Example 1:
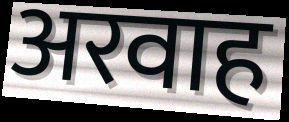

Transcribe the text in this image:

अरवाह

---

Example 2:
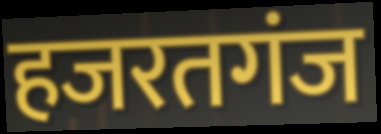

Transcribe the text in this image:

हजरतगंज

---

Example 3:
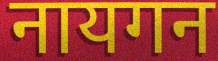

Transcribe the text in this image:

नायगन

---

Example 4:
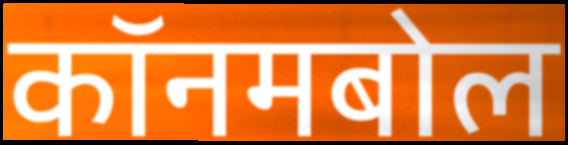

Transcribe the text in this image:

कॉनमबोल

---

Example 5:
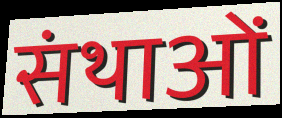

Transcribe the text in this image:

संथाओं